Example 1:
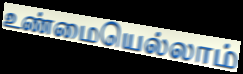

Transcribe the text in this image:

உண்மையெல்லாம்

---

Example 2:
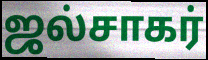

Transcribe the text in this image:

ஜல்சாகர்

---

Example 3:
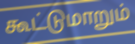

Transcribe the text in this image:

கூட்டுமாறும்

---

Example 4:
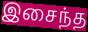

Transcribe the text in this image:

இசைந்த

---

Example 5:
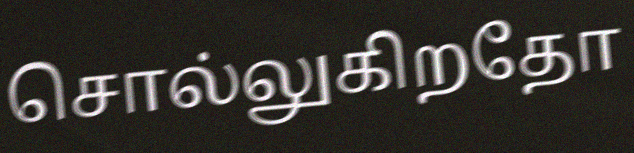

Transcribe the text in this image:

சொல்லுகிறதோ